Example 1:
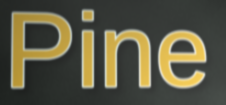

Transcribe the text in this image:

Pine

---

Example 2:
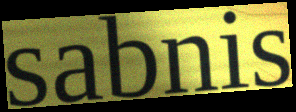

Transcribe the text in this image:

sabnis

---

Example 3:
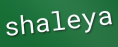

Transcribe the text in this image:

shaleya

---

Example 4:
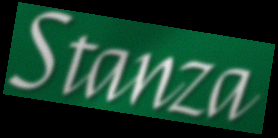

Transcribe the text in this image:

Stanza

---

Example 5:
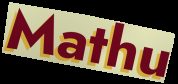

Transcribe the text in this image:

Mathu